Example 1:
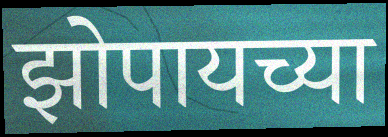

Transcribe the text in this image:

झोपायच्या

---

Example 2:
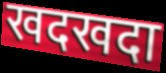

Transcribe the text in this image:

खदखदा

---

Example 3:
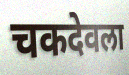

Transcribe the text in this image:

चकदेवला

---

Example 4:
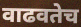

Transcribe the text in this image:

वाढवतेच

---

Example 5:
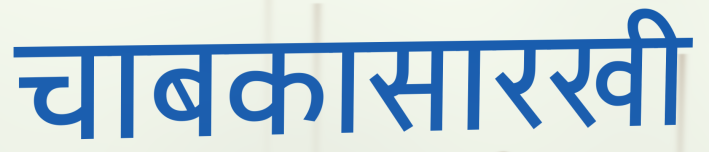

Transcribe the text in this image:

चाबकासारखी